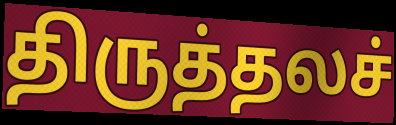
திருத்தலச்